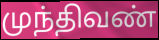
முந்திவண்